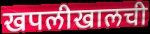
खपलीखालची